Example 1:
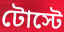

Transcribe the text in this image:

টোস্টে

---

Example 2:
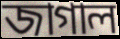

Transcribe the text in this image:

জাগাল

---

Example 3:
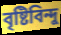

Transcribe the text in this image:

বৃষ্টিবিন্দু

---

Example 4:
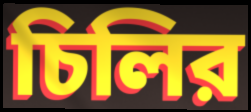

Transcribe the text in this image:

চিলির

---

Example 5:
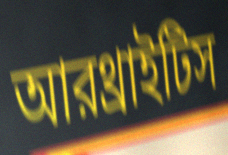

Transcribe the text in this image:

আরথ্রাইটিস